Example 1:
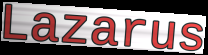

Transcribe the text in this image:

Lazarus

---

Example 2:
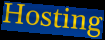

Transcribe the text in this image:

Hosting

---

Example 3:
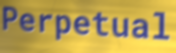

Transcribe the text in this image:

Perpetual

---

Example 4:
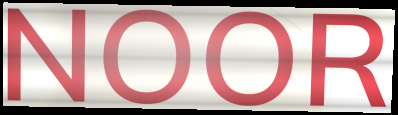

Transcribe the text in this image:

NOOR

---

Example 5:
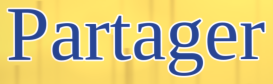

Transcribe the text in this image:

Partager